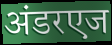
अंडरएज